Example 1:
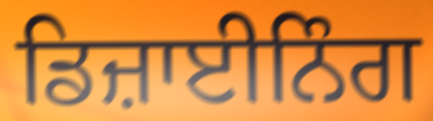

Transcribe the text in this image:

ਡਿਜ਼ਾਈਨਿੰਗ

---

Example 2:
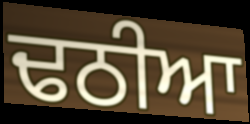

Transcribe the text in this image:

ਢਠੀਆ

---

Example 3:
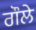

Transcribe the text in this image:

ਗੌਲੇ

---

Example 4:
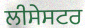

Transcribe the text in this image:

ਲੀਸੇਸਟਰ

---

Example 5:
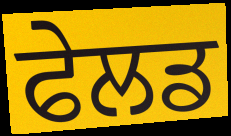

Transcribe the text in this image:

ਫੇਲਡ